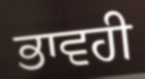
ਭਾਵਹੀ